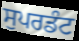
ਸੁਪਰਡੰਟ